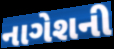
નાગેશની